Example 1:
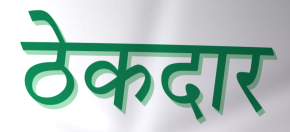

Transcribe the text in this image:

ठेकदार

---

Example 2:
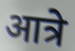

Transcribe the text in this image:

आत्रे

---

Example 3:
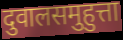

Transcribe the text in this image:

दुवालसमुहुत्ता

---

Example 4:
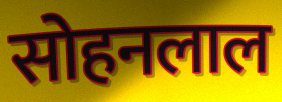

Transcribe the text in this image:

सोहनलाल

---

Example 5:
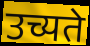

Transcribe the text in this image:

उच्यते